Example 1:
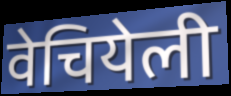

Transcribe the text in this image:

वेचियेली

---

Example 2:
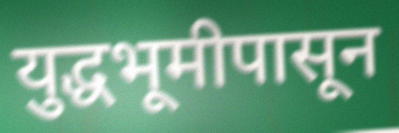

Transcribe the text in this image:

युद्धभूमीपासून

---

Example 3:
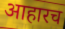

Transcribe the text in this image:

आहारच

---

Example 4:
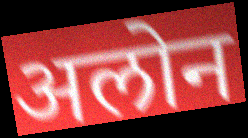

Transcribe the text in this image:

अलोन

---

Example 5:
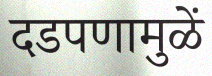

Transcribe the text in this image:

दडपणामुळें